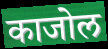
काजोल